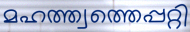
മഹത്ത്വത്തെപ്പറ്റി